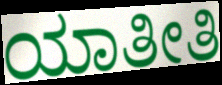
ಯಾತೀತಿ